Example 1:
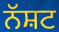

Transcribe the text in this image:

ਨੱਸ਼ਟ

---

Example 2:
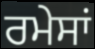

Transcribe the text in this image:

ਰਮੇਸਾਂ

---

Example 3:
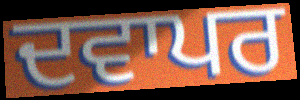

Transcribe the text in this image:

ਦਵਾਪਰ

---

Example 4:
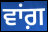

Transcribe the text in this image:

ਵਾਂਗ਼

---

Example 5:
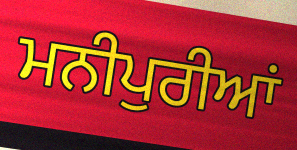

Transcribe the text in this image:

ਮਨੀਪੁਰੀਆਂ